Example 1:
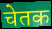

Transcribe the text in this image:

चेतक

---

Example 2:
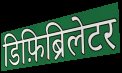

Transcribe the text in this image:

डिफ़िब्रिलेटर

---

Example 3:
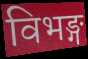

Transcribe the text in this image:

विभङ्ग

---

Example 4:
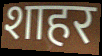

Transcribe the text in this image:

शाहर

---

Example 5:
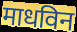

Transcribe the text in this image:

माधविन